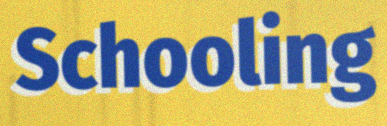
Schooling